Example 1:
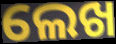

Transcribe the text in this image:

ଲେଖ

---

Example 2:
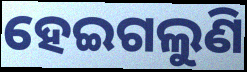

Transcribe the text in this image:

ହେଇଗଲୁଣି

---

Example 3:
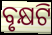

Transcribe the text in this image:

ବୃକ୍ଷଟି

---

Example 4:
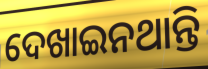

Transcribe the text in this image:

ଦେଖାଇନଥାନ୍ତି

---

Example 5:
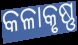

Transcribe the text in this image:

କଳାକୃଷ୍ଣ